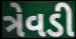
ત્રેવડી